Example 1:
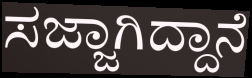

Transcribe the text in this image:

ಸಜ್ಜಾಗಿದ್ದಾನೆ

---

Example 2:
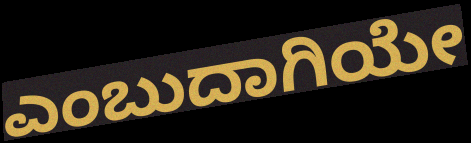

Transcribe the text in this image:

ಎಂಬುದಾಗಿಯೇ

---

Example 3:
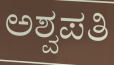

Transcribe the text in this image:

ಅಶ್ವಪತಿ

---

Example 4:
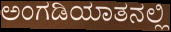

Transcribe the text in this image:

ಅಂಗಡಿಯಾತನಲ್ಲಿ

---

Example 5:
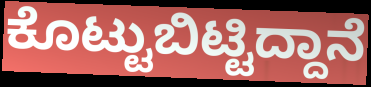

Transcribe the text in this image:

ಕೊಟ್ಟುಬಿಟ್ಟಿದ್ದಾನೆ